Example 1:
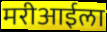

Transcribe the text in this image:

मरीआईला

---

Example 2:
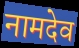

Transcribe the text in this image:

नामदेव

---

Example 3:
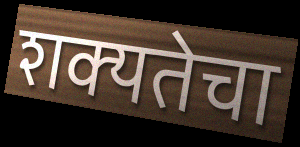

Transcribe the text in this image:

शक्यतेचा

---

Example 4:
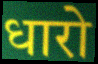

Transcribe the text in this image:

धारो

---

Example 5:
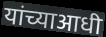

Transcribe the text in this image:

यांच्याआधी